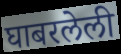
घाबरलेली